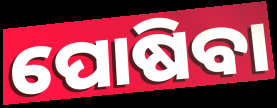
ପୋଷିବା